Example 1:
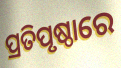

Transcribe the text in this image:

ପ୍ରତିପୃଷ୍ଠାରେ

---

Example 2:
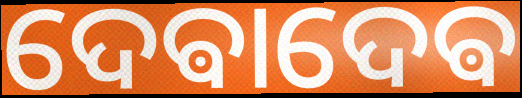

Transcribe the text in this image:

ଦେଵାଦେଵ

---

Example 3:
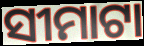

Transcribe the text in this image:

ସୀମାଟା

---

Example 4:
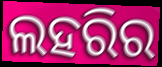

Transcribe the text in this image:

ଲହରିର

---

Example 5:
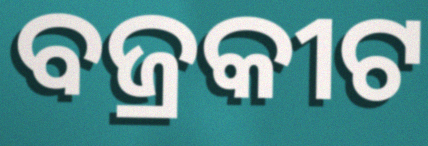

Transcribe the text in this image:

ବଜ୍ରକୀଟ